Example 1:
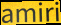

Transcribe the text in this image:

amiri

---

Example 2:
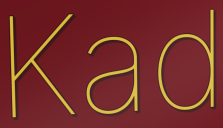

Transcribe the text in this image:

Kad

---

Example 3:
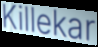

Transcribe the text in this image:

Killekar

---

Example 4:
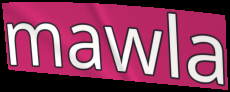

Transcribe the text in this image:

mawla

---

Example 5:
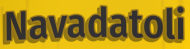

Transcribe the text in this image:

Navadatoli